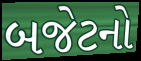
બજેટનો